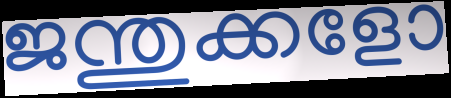
ജന്തുക്കളോ